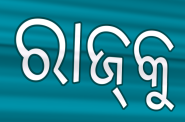
ରାଜ୍‍କୁ